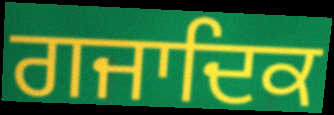
ਗਜਾਦਿਕ